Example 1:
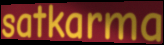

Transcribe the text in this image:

satkarma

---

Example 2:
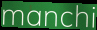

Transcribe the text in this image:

manchi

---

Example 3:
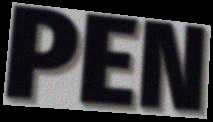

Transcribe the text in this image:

PEN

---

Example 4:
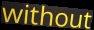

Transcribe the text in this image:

without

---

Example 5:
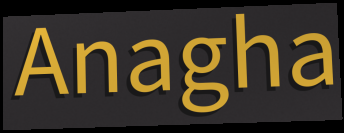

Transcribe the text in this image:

Anagha